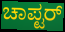
ಚಾಪ್ಟರ್